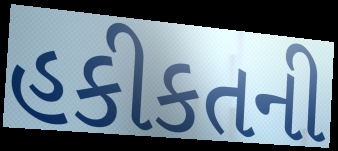
હકીકતની